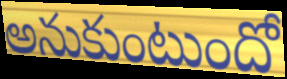
అనుకుంటుందో